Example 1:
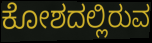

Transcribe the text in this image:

ಕೋಶದಲ್ಲಿರುವ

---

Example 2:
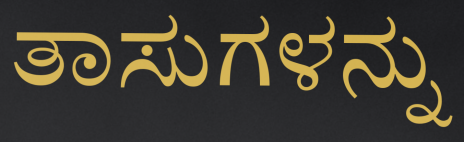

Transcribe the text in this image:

ತಾಸುಗಳನ್ನು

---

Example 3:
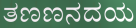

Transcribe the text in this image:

ತಣಣನದಯ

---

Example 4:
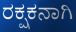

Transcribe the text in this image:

ರಕ್ಷಕನಾಗಿ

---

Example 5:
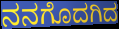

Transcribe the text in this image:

ನನಗೊದಗಿದ